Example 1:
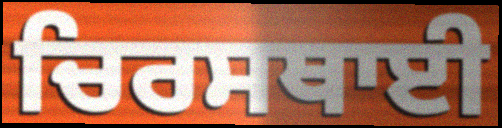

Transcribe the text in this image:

ਚਿਰਸਥਾਈ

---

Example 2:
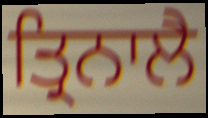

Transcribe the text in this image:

ਤ੍ਰਿਨਾਲੈ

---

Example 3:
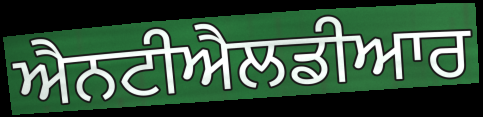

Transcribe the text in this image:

ਐਨਟੀਐਲਡੀਆਰ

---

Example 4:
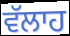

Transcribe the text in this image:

ਵੱਲਾਹ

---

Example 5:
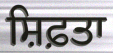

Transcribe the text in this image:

ਸ਼ਿਫ਼ਤਾ